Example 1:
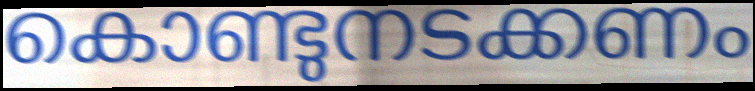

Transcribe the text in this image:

കൊണ്ടുനടക്കണം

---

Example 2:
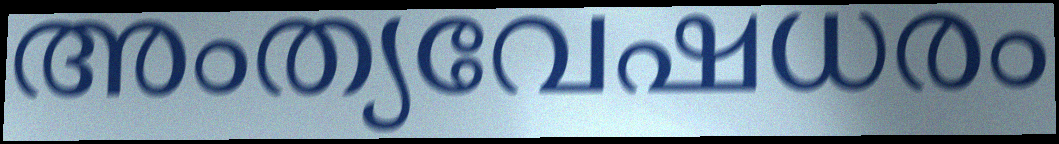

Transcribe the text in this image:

അംത്യവേഷധരം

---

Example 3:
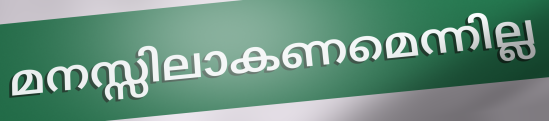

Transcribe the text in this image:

മനസ്സിലാകണമെന്നില്ല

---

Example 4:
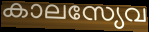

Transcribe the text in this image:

കാലസ്യേവ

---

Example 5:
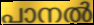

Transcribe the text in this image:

പാനൽ